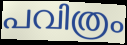
പവിത്രം